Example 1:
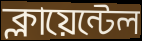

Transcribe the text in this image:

ক্লায়েন্টেল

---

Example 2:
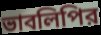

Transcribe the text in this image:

ভাবলিপির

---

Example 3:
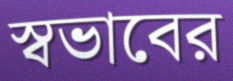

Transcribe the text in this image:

স্বভাবের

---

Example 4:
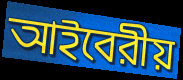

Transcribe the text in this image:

আইবেরীয়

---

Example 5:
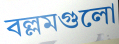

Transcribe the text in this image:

বল্লমগুলো